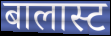
बालास्ट